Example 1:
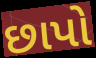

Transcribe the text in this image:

છાપો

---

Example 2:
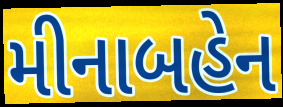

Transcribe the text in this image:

મીનાબહેન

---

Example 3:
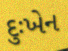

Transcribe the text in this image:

દુઃખેન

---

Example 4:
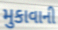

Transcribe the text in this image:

મુકાવાની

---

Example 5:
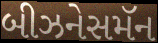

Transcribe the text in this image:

બીઝનેસમૅન